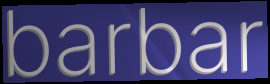
barbar